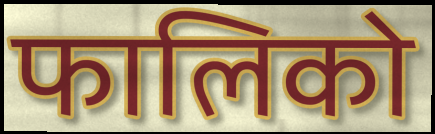
फालिको